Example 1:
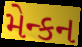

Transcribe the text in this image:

મેન્કન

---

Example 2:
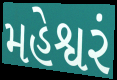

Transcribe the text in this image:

મહેશ્વરં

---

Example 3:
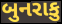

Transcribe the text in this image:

બુનરાકુ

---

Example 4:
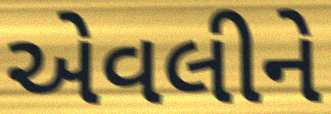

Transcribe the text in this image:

એવલીને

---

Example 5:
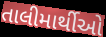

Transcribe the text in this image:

તાલીમાર્થીઓ